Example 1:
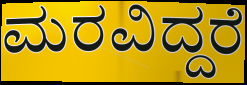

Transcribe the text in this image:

ಮರವಿದ್ದರೆ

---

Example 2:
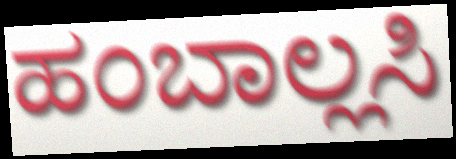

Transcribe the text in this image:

ಹಂಬಾಲ್ಲಸಿ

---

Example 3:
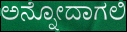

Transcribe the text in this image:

ಅನ್ನೋದಾಗಲಿ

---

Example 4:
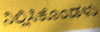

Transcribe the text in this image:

ನಿಲ್ಲಿಸಿಕೊಂಡಳು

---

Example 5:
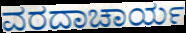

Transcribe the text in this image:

ವರದಾಚಾರ್ಯ